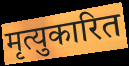
मृत्युकारित